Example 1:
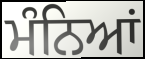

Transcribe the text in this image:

ਮੰਨਿਆਂ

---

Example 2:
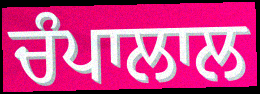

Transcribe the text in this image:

ਚੰਪਾਲਾਲ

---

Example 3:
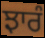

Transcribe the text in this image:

ਝਾਰੰ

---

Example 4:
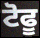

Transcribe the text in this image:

ਟੋਫੂ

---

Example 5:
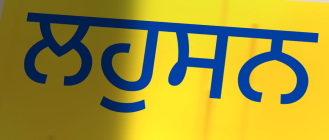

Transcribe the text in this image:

ਲਹੁਸਨ